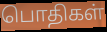
பொதிகள்